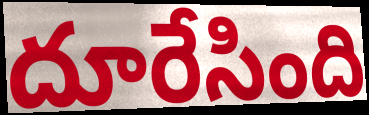
దూరేసింది